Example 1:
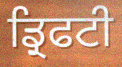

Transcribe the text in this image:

ਡ੍ਰਿਫਟੀ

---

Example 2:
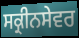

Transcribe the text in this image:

ਸਕ੍ਰੀਨਸੇਵਰ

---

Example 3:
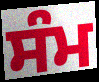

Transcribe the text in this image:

ਸੰਮ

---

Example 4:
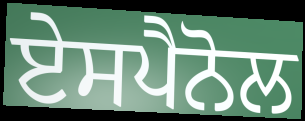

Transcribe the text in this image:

ਏਸਪੈਨੋਲ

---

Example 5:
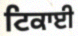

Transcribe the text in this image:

ਟਿਕਾਈ